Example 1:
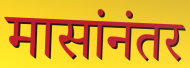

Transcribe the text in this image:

मासांनंतर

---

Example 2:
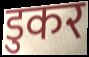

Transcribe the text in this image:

डुकर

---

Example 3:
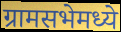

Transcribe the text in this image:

ग्रामसभेमध्ये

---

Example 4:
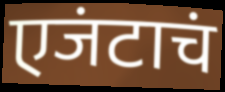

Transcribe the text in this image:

एजंटाचं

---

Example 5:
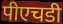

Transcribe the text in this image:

पीएचडी